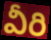
వీరి